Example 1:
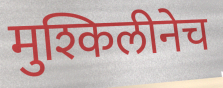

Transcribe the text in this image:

मुश्किलीनेच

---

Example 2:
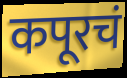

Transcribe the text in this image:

कपूरचं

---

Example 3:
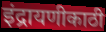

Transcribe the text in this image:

इंद्रायणीकाठी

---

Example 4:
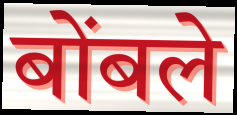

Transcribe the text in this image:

बोंबले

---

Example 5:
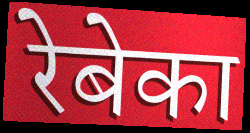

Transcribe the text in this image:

रेबेका